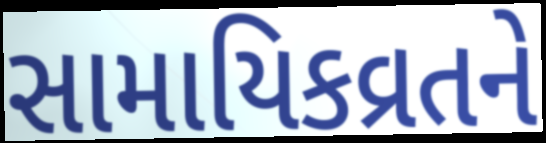
સામાયિકવ્રતને